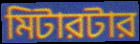
মিটারটার